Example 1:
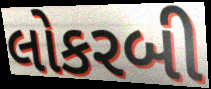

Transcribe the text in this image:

લોકરબી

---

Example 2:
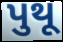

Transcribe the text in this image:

પુથૂ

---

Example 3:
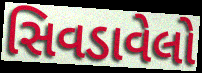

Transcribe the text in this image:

સિવડાવેલો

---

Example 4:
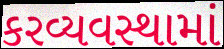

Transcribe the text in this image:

કરવ્યવસ્થામાં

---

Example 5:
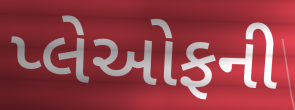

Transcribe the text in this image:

પ્લેઓફની